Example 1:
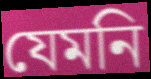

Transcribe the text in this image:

যেমনি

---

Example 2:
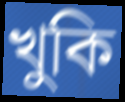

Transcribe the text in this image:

খুকি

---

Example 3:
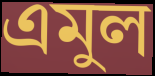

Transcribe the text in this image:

এমুল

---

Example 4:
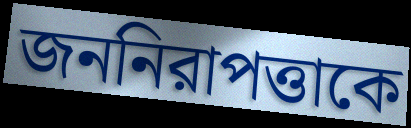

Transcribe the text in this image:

জননিরাপত্তাকে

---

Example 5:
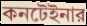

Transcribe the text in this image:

কনটেইনার